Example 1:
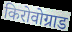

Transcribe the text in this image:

किरोवोग्राड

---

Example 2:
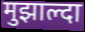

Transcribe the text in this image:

मुझाल्दा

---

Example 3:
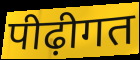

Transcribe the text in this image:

पीढ़ीगत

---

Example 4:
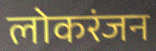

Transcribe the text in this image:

लोकरंजन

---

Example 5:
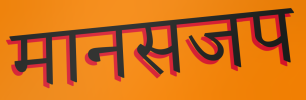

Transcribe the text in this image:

मानसजप